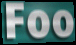
Foo